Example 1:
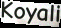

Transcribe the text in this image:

Koyali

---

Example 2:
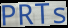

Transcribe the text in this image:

PRTs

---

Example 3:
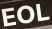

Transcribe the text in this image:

EOL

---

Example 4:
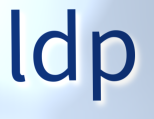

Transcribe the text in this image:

ldp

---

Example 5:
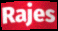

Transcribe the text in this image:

Rajes